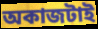
অকাজটাই